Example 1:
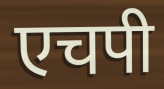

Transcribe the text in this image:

एचपी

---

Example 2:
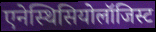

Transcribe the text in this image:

एनेस्थिसियोलॉजिस्ट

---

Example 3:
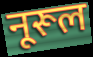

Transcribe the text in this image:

नूरूल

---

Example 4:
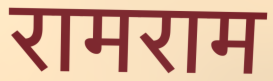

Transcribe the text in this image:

रामराम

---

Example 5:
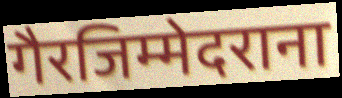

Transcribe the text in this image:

गैरजिम्मेदराना